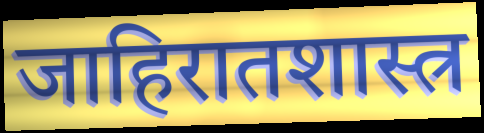
जाहिरातशास्त्र